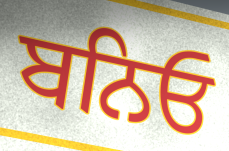
ਬਨਿਓ